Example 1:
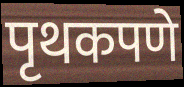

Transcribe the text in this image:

पृथकपणे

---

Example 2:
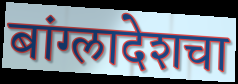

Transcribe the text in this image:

बांग्लादेशचा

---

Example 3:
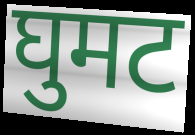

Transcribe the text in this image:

घुमट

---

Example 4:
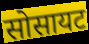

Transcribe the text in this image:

सोसायट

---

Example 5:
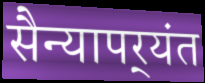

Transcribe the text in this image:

सैन्यापर्यंत